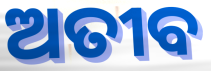
ଅତୀବ